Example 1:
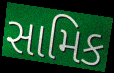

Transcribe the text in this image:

સામિક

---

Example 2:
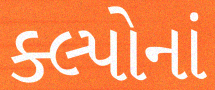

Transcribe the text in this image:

ક્લ્પોનાં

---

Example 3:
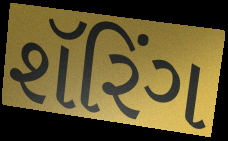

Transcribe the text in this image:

શૅરિંગ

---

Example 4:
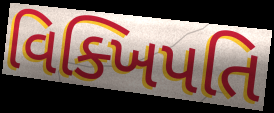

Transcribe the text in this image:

વિક્ખિપતિ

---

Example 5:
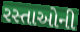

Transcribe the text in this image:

રસ્તાઓની